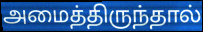
அமைத்திருந்தால்